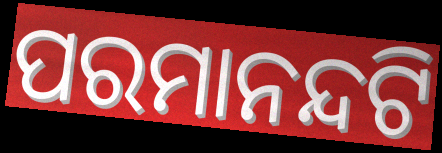
ପରମାନନ୍ଦଟି